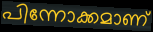
പിന്നോക്കമാണ്